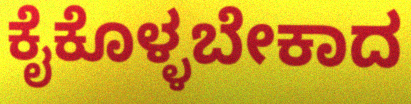
ಕೈಕೊಳ್ಳಬೇಕಾದ